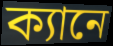
ক্যানে